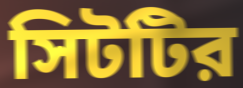
সিটটির